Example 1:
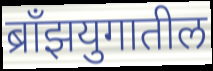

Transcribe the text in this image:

ब्राँझयुगातील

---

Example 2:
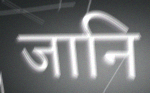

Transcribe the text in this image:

जानि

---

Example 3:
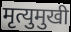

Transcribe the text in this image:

मृत्युमुखी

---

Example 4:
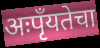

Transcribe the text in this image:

अःपृँयतेचा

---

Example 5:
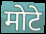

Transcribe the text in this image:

मोटे